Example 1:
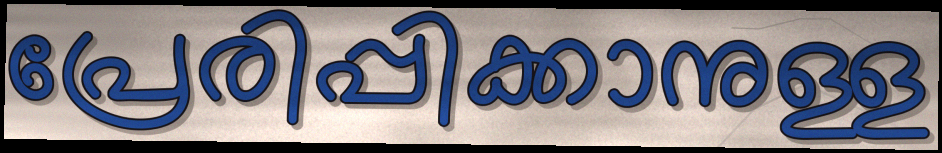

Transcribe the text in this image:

പ്രേരിപ്പിക്കാനുള്ള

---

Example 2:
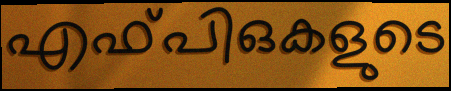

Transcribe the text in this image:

എഫ്പിഒകളുടെ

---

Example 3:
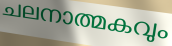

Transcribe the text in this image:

ചലനാത്മകവും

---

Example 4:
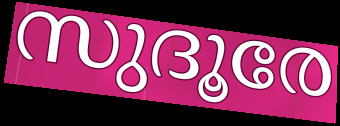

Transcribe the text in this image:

സുദൂരേ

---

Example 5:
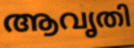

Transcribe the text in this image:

ആവൃതി